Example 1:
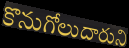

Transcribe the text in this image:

కొనుగోలుదారుని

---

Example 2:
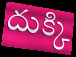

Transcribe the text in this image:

దుక్కి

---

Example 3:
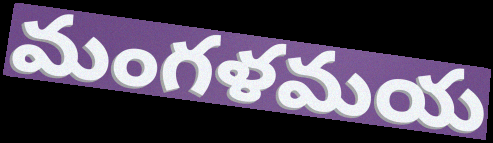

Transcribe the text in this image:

మంగళమయ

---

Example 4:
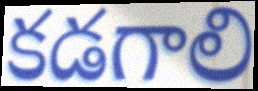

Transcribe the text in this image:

కడగాలి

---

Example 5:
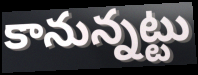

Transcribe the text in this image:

కానున్నట్టు